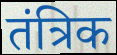
तंत्रिक